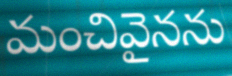
మంచివైనను